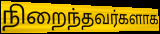
நிறைந்தவர்களாக